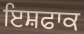
ਇਸ਼ਫਾਕ